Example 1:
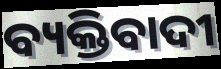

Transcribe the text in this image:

ବ୍ୟକ୍ତିବାଦୀ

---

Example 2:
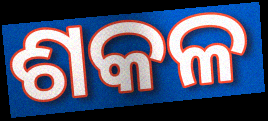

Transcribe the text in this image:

ଶକଳ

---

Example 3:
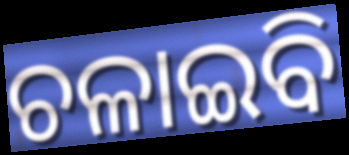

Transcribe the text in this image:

ଚଳାଇବି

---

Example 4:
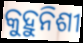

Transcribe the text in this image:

କୁହୁନିଶୀ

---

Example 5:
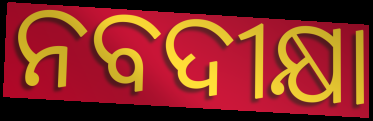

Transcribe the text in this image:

ନବଦୀକ୍ଷା